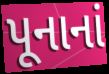
પૂનાનાં